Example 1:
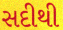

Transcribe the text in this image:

સદીથી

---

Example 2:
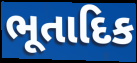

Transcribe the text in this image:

ભૂતાદિક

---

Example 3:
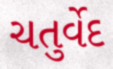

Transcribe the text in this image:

ચતુર્વેદ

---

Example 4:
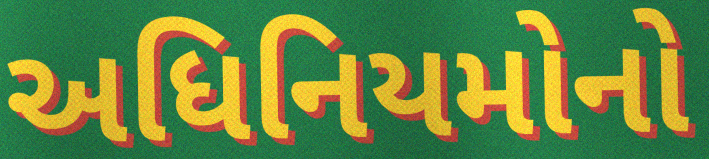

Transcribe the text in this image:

અધિનિયમોનો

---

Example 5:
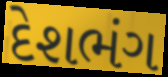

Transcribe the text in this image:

દેશભંગ